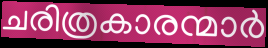
ചരിത്രകാരന്മാർ